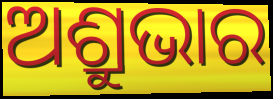
ଅଶ୍ରୁଭାର